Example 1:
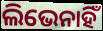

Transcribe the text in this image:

ଲିଭେନାହିଁ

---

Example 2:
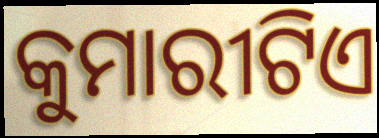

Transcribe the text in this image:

କୁମାରୀଟିଏ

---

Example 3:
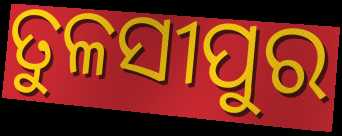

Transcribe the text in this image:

ତୁଳସୀପୁର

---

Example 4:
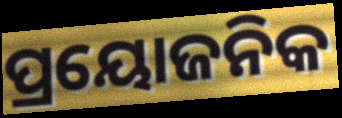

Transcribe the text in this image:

ପ୍ରୟୋଜନିକ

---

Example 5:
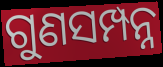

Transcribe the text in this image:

ଗୁଣସମ୍ପନ୍ନ